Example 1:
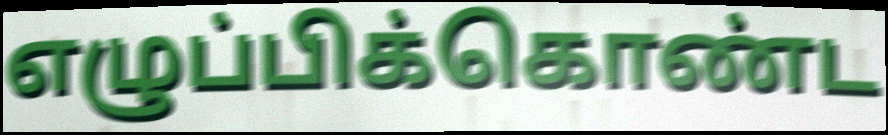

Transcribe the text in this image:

எழுப்பிக்கொண்ட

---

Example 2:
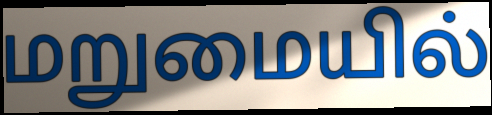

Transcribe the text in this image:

மறுமையில்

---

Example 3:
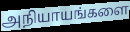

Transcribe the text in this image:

அநியாயங்களை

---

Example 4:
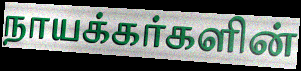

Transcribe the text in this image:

நாயக்கர்களின்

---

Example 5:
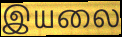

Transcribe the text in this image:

இயலை